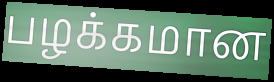
பழக்கமான